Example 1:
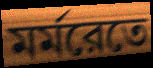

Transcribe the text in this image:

মর্মরেতে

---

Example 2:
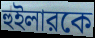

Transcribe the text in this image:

হুইলারকে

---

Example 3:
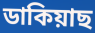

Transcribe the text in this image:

ডাকিয়াছ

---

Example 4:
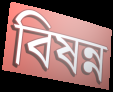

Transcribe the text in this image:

বিষন্ন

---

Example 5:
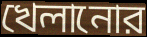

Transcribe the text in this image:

খেলানোর